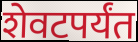
शेवटपर्यंत